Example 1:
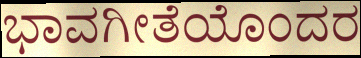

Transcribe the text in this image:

ಭಾವಗೀತೆಯೊಂದರ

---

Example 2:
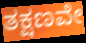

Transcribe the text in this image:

ತಕ್ಷಣವೇ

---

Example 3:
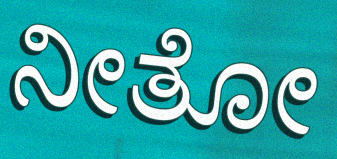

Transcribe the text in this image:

ನೀತೋ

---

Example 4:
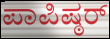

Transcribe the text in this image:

ಪಾಪಿಷ್ಠರ್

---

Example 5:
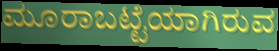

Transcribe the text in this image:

ಮೂರಾಬಟ್ಟೆಯಾಗಿರುವ